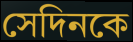
সেদিনকে